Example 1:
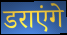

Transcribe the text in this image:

डराएंगे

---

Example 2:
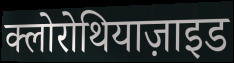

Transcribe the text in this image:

क्लोरोथियाज़ाइड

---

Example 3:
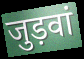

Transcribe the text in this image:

जुड़वां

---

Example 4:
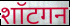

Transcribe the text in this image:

शॉटगन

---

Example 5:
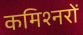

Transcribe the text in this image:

कमिश्नरों